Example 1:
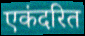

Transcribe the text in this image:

एकंदरित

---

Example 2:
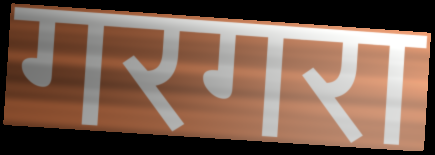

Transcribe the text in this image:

गरगरा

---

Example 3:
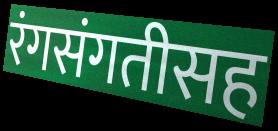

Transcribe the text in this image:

रंगसंगतीसह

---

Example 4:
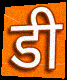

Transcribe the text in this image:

डी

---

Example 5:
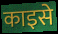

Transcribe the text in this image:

काइसे